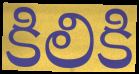
కిలికి